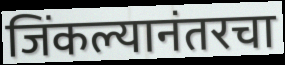
जिंकल्यानंतरचा